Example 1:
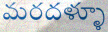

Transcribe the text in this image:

మరదళ్ళూ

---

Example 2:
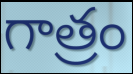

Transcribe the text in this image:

గాత్రం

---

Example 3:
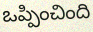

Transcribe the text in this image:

ఒప్పించింది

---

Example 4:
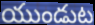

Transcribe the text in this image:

యుండుట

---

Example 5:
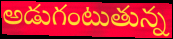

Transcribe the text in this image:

అడుగంటుతున్న